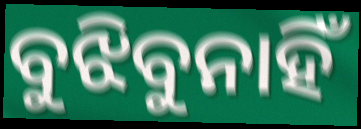
ବୁଝିବୁନାହିଁ